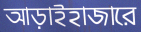
আড়াইহাজারে